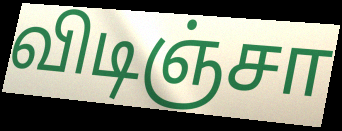
விடிஞ்சா